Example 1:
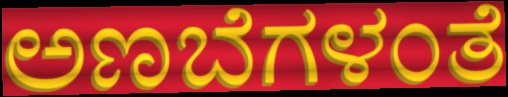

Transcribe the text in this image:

ಅಣಬೆಗಳಂತೆ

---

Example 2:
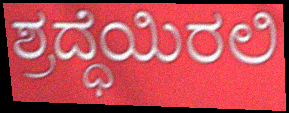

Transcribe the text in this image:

ಶ್ರದ್ಧೆಯಿರಲಿ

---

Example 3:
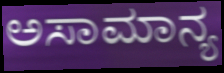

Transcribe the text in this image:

ಅಸಾಮಾನ್ಯ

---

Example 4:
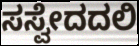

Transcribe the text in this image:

ಸಸ್ವೇದದಲಿ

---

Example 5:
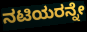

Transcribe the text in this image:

ನಟಿಯರನ್ನೇ